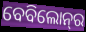
ବେବିଲୋନ୍‌ର